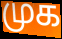
முக